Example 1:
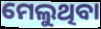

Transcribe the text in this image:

ମେଲୁଥିବା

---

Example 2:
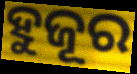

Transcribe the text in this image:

ହୁଜୂର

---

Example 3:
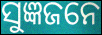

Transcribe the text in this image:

ସୁଜ୍ଞଜନେ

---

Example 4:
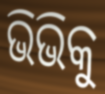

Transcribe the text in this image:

ଭିଭିକୁ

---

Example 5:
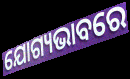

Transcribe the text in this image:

ଯୋଗ୍ୟଭାବରେ